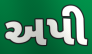
અપી